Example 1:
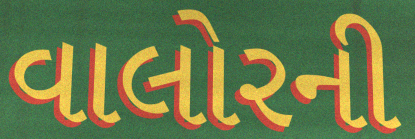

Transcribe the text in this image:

વાલોરની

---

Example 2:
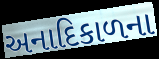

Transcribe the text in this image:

અનાદિકાળના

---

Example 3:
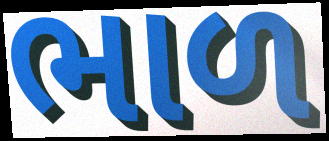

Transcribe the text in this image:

ભાળ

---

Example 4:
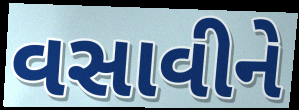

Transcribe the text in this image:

વસાવીને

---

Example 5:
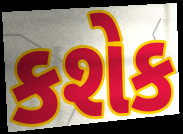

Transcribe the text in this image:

કશેક